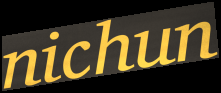
nichun